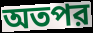
অতপর